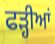
ਫੜ੍ਹੀਆਂ